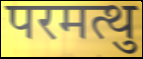
परमत्थु